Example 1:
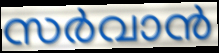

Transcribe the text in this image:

സർവാൻ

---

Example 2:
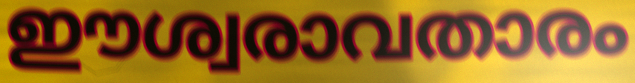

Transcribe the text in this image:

ഈശ്വരാവതാരം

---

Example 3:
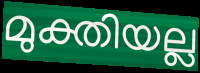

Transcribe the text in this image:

മുക്തിയല്ല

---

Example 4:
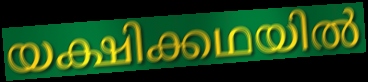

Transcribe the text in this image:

യക്ഷിക്കഥയിൽ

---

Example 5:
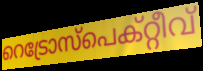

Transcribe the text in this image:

റെട്രോസ്പെക്റ്റീവ്